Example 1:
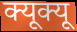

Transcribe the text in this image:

क्यूक्यू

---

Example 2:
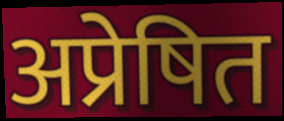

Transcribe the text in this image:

अप्रेषित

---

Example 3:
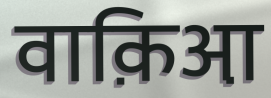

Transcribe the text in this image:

वाक़िआ़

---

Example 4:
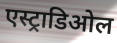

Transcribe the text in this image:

एस्ट्राडिओल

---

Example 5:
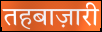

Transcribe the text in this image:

तहबाज़ारी